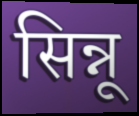
सिन्नू